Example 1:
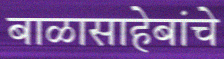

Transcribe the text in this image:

बाळासाहेबांचे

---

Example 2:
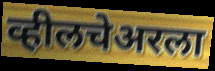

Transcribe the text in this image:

व्हीलचेअरला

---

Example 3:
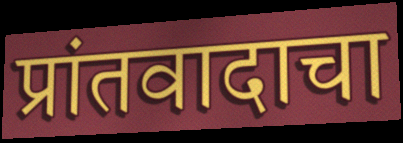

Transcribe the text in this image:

प्रांतवादाचा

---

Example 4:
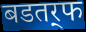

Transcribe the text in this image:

बडतर्फ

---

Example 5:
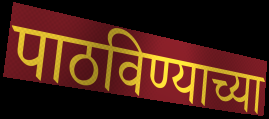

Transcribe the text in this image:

पाठविण्याच्या